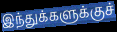
இந்துக்களுக்குச்